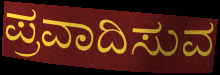
ಪ್ರವಾದಿಸುವ